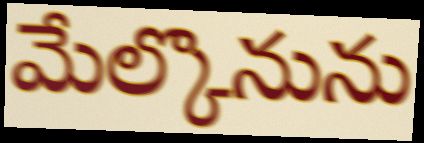
మేల్కొనును